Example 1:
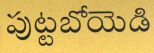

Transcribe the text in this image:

పుట్టబోయెడి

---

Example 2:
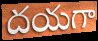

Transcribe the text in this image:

దయగా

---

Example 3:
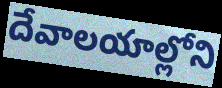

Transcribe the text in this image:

దేవాలయాల్లోని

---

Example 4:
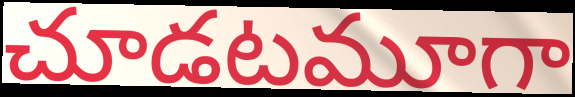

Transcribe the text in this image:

చూడటమూగా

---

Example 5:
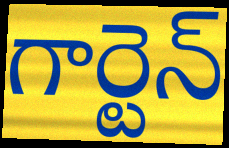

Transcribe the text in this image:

గార్టెన్